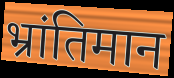
भ्रांतिमान